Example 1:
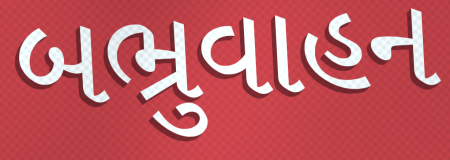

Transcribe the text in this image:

બભ્રુવાહન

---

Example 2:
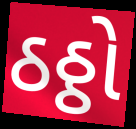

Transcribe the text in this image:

ઠઠ્ઠો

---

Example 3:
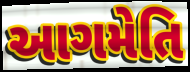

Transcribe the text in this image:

આગમેતિ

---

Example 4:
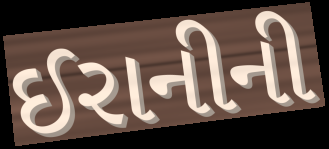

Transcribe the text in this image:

ઈરાનીની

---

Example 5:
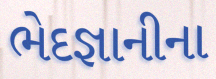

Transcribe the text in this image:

ભેદજ્ઞાનીના